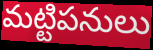
మట్టిపనులు